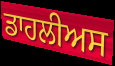
ਡਾਹਲੀਅਸ